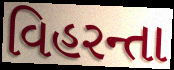
વિહરન્તા